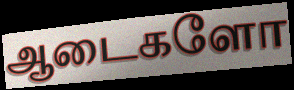
ஆடைகளோ